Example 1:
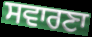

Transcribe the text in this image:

ਸਵਾਰਣਾ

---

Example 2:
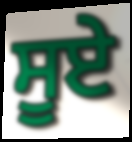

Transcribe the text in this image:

ਸੂਏ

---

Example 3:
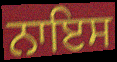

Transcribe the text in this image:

ਨਾਇਸ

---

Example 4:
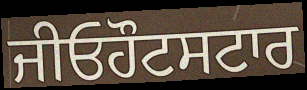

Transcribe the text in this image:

ਜੀਓਹੌਟਸਟਾਰ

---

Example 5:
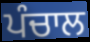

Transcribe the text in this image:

ਪੰਚਾਲ